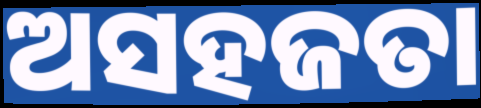
ଅସହଜତା